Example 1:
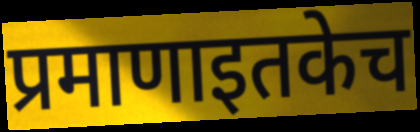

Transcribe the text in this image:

प्रमाणाइतकेच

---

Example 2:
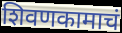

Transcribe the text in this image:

शिवणकामाचं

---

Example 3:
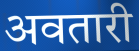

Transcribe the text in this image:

अवतारी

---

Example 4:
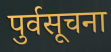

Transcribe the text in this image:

पुर्वसूचना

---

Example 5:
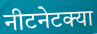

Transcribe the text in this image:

नीटनेटक्‍या